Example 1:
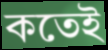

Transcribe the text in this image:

কতেই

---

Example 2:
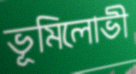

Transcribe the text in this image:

ভূমিলোভী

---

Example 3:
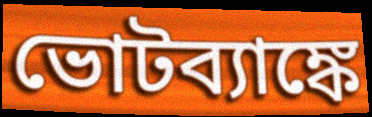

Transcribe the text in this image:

ভোটব্যাঙ্কে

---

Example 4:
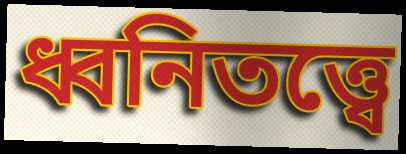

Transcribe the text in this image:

ধ্বনিতত্ত্বে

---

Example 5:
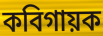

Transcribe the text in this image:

কবিগায়ক